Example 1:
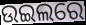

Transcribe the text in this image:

ଉଇଲରେ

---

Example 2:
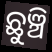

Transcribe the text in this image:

ଛୁଞ୍ଚି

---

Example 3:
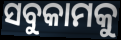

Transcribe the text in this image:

ସବୁକାମକୁ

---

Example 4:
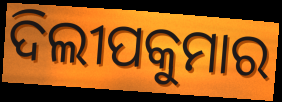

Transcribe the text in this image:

ଦିଲୀପକୁମାର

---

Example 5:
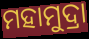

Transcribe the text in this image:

ମହାମୁଦ୍ରା